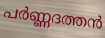
പർണ്ണദത്തൻ